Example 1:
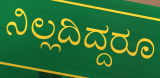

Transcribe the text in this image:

ನಿಲ್ಲದಿದ್ದರೂ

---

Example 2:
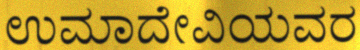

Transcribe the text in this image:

ಉಮಾದೇವಿಯವರ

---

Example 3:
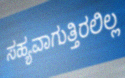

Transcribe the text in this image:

ಸಹ್ಯವಾಗುತ್ತಿರಲಿಲ್ಲ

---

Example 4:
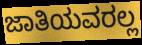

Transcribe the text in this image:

ಜಾತಿಯವರಲ್ಲ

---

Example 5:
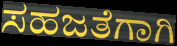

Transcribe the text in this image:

ಸಹಜತೆಗಾಗಿ